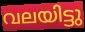
വലയിട്ടു